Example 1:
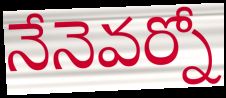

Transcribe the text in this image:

నేనెవర్నో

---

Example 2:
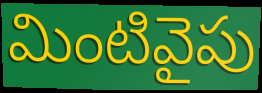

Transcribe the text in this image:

మింటివైపు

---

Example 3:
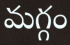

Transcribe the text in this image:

మగ్గం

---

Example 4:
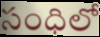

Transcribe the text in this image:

సంధిలో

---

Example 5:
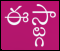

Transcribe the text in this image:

ఈస్ట్గా